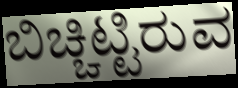
ಬಿಚ್ಚಿಟ್ಟಿರುವ